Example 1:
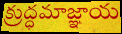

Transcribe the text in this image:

క్రుద్ధమాజ్ఞాయ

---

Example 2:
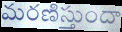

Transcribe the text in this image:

మరణిస్తుందా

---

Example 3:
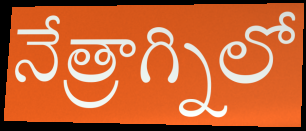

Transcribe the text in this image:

నేత్రాగ్నిలో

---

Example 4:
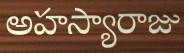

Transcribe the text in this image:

అహస్యారాజు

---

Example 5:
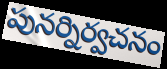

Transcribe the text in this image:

పునర్నిర్వచనం